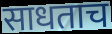
साधताच